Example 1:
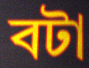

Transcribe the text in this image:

বটা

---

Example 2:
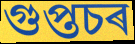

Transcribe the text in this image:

গুপ্তচৰ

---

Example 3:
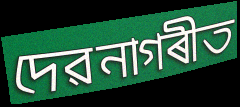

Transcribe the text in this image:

দেৱনাগৰীত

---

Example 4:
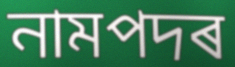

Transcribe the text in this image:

নামপদৰ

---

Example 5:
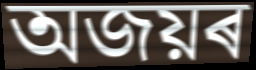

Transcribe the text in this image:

অজয়ৰ